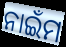
ନାଇଁମ